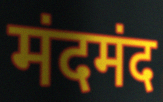
मंदमंद